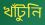
খাঁটুনি